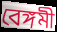
বেঙ্গমী